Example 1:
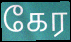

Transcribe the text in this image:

கேர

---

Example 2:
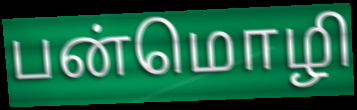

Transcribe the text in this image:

பன்மொழி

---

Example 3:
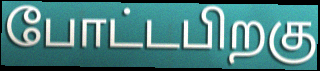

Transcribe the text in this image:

போட்டபிறகு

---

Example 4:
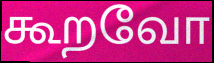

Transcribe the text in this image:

கூறவோ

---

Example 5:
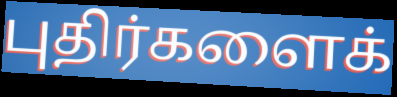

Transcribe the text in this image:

புதிர்களைக்